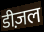
डीज़ल